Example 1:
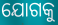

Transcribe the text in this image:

ଯୋଗକୁ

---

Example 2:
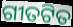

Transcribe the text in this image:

ଗୀତଟିତ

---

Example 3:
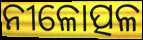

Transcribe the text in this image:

ନୀଳୋତ୍ପଳ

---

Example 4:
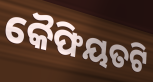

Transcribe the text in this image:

କୈଫିୟତଟି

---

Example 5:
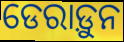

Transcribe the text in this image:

ଡେରାଡ଼ୁନ